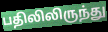
பதிலிலிருந்து